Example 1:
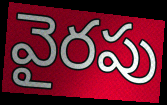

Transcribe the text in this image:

వైరపు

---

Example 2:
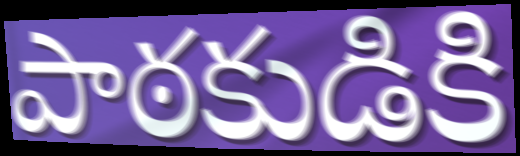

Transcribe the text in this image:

పాఠకుడికి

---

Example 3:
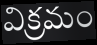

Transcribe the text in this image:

విక్రమం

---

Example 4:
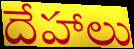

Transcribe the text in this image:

దేహాలు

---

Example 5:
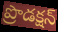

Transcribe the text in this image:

ప్రొడక్షన్